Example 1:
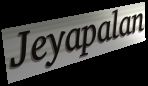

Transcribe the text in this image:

Jeyapalan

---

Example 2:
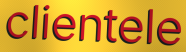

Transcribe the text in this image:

clientele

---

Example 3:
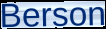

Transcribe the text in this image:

Berson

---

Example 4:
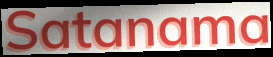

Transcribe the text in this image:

Satanama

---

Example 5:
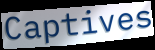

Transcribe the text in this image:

Captives